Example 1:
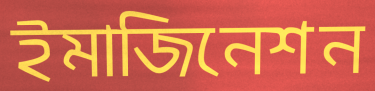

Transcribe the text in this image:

ইমাজিনেশন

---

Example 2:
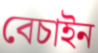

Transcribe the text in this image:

বেচাইন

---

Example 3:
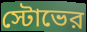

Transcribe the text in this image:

স্টোভের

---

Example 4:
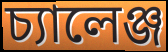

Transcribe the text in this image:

চ্যালেঞ্জ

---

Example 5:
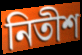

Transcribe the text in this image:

নিতীশ